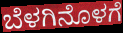
ಬೆಳಗಿನೊಳಗೆ